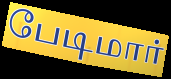
பேடிமார்